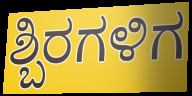
ಶ್ಬಿರಗಳಿಗ